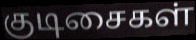
குடிசைகள்